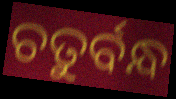
ଚତୁର୍ବନ୍ଧ